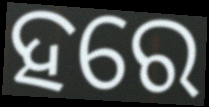
ହରେ